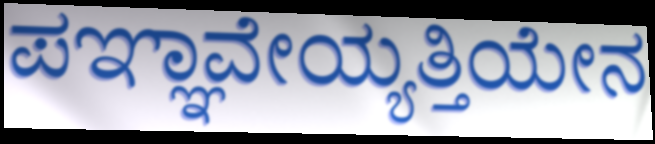
ಪಞ್ಞಾವೇಯ್ಯತ್ತಿಯೇನ